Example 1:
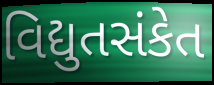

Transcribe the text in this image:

વિદ્યુતસંકેત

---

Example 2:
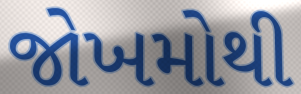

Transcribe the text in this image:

જોખમોથી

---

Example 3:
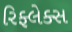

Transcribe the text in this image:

રિફ્લેક્સ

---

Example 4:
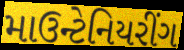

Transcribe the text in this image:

માઉન્ટેનિયરીંગ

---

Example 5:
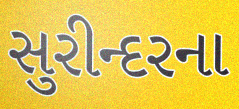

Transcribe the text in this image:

સુરીન્દરના